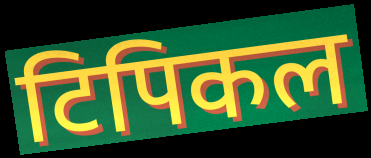
टिपिकल